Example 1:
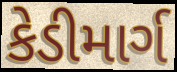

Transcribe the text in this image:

કેડીમાર્ગ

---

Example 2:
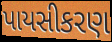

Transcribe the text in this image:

પાયસીકરણ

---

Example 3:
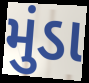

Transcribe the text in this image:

મુંડા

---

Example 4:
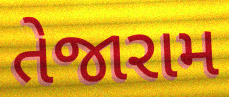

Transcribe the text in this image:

તેજારામ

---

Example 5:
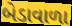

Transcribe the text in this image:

બેડાવાળા